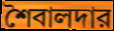
শৈবালদার